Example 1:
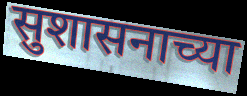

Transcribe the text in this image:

सुशासनाच्या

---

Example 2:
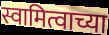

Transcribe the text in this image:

स्वामित्वाच्या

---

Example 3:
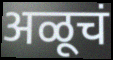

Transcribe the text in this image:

अळूचं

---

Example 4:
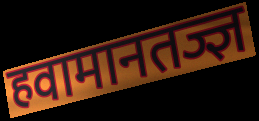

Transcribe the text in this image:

हवामानतज्ज्ञ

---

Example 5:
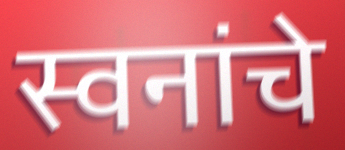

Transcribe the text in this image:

स्वनांचे